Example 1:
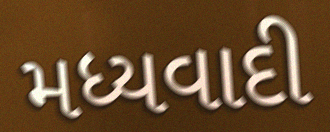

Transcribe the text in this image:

મધ્યવાદી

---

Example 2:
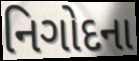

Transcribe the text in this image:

નિગોદના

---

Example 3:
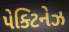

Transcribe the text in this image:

પેક્ટિનેઝ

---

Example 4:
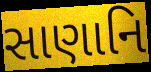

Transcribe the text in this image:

સાણાનિ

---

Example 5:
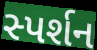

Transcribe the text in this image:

સ્પર્શન